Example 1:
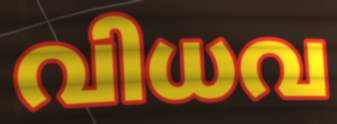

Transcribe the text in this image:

വിധവ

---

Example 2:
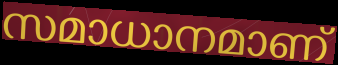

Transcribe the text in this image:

സമാധാനമാണ്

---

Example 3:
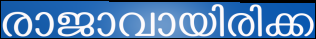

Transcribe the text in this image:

രാജാവായിരിക്ക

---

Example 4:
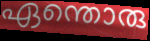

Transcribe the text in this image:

ഏന്തൊരു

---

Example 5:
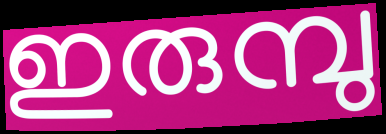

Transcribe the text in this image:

ഇരുമ്പു